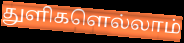
துளிகளெல்லாம்